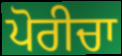
ਪੋਰੀਚਾ